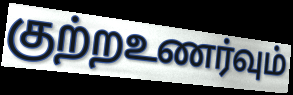
குற்றஉணர்வும்